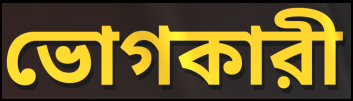
ভোগকারী